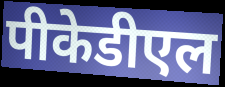
पीकेडीएल